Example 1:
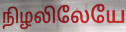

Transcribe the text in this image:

நிழலிலேயே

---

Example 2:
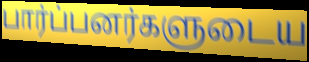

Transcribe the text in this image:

பார்ப்பனர்களுடைய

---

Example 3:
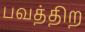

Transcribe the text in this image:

பவத்திற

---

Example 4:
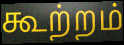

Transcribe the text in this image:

கூற்றம்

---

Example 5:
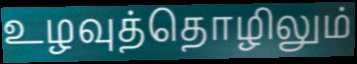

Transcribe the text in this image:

உழவுத்தொழிலும்